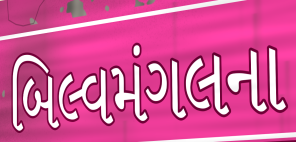
બિલ્વમંગલના